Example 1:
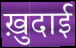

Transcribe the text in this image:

ख़ुदाई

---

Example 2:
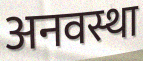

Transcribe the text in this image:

अनवस्था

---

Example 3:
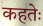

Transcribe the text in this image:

कहतेः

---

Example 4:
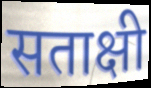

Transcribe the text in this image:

सताक्षी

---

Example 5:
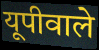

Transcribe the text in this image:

यूपीवाले